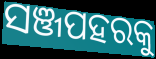
ସଞ୍ଜପହରକୁ